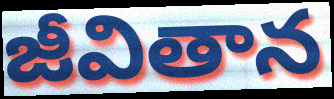
జీవితాన